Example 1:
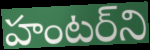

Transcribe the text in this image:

హంటర్‌ని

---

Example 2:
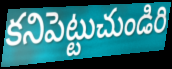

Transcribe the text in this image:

కనిపెట్టుచుండిరి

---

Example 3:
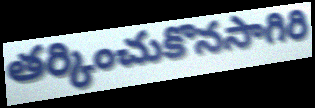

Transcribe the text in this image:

తర్కించుకొనసాగిరి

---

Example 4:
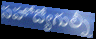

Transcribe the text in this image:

సహోద్యోగుల్నీ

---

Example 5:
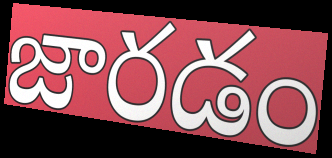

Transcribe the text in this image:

జారడం